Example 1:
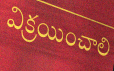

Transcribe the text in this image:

విక్రయించాలి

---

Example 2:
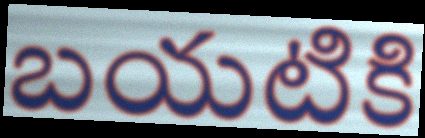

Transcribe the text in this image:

బయటికి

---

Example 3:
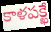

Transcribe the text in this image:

కాళపక్ఖే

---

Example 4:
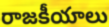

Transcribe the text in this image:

రాజకీయాలు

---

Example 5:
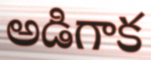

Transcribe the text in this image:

అడిగాక